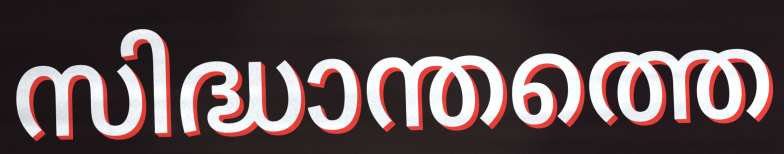
സിദ്ധാന്തത്തെ